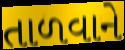
તાળવાને